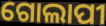
ଗୋଲାପୀ